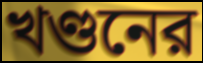
খণ্ডনের